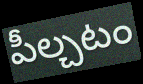
పీల్చటం